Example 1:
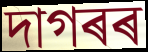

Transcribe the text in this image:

দাগৰৰ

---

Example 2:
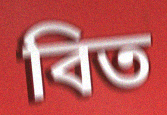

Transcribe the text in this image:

বিত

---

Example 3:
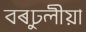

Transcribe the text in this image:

বৰঢুলীয়া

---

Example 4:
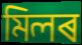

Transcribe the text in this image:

মিলৰ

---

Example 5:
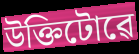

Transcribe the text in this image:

উক্তিটোৱে